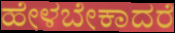
ಹೇಳಬೇಕಾದರೆ